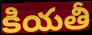
కియతీ